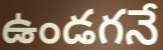
ఉండగనే